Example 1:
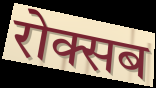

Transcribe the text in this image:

रोक्सब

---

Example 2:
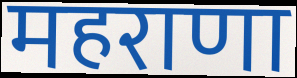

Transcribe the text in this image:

महराणा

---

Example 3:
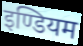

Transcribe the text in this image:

इण्डियम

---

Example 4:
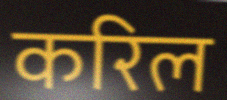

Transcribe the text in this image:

करिल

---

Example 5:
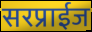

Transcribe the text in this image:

सरप्राईज